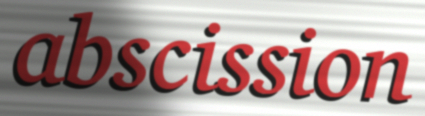
abscission